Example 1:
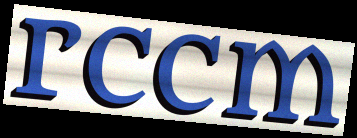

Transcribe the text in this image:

rccm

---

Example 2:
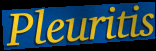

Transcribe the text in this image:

Pleuritis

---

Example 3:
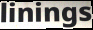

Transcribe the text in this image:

linings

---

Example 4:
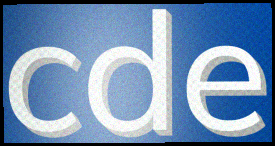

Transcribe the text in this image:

cde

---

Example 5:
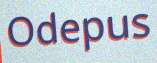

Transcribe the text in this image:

Odepus